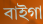
বাইগা